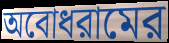
অবোধরামের